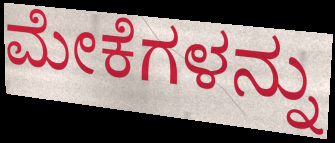
ಮೇಕೆಗಳನ್ನು